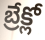
బ్రేక్లో